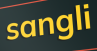
sangli